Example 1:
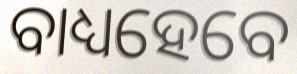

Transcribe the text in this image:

ବାଧ୍ୟହେବେ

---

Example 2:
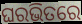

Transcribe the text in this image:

ଘରଭିତରେ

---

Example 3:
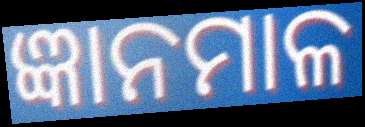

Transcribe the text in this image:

ଜ୍ଞାନମାଳ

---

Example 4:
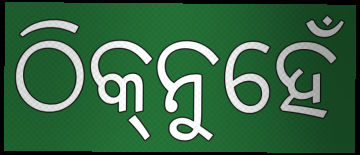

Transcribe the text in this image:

ଠିକ୍‌ନୁହେଁ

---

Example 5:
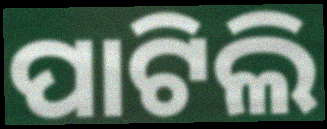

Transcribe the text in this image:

ପାଟିଲି